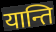
यान्ति